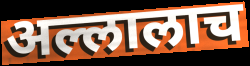
अल्लालाच